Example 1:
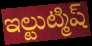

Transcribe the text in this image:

ఇల్టుట్మిష్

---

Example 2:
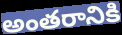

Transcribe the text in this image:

అంతరానికి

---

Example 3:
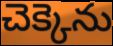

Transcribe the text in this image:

చెక్కెను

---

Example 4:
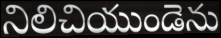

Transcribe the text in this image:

నిలిచియుండెను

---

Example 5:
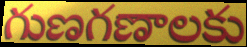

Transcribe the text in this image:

గుణగణాలకు